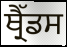
ਥ੍ਰੈੱਡਸ